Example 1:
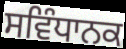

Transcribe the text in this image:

ਸਵਿੰਧਾਨਕ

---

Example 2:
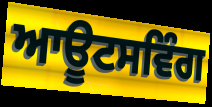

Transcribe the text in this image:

ਆਊਟਸਵਿੰਗ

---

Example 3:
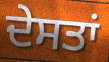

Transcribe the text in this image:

ਦੇਸਤਾਂ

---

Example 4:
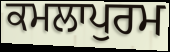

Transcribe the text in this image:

ਕਮਲਾਪੁਰਮ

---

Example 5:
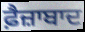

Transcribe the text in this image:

ਫ਼ੈਜ਼ਾਬਾਦ